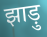
झाड़ु